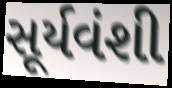
સૂર્યવંશી